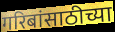
गरिबांसाठीच्या